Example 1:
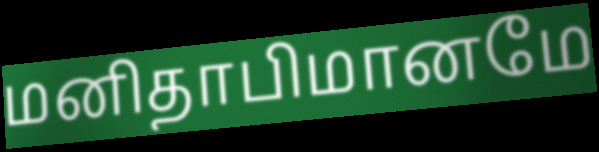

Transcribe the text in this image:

மனிதாபிமானமே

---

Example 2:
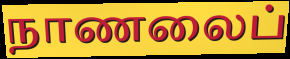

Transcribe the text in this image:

நாணலைப்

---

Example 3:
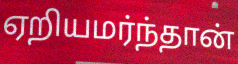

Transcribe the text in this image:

ஏறியமர்ந்தான்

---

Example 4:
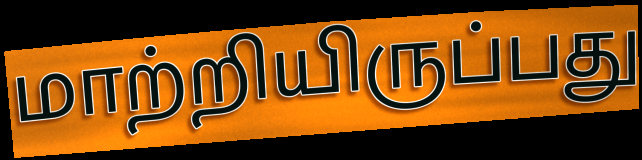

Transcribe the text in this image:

மாற்றியிருப்பது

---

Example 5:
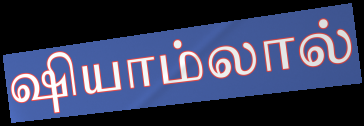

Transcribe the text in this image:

ஷியாம்லால்